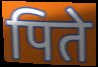
पिते